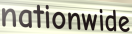
nationwide